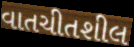
વાતચીતશીલ